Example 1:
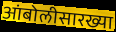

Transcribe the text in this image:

आंबोलीसारख्या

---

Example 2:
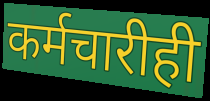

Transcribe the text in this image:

कर्मचारीही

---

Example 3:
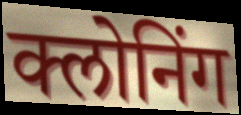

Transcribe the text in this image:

क्लोनिंग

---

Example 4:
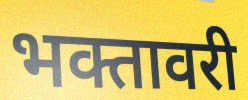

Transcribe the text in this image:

भक्तावरी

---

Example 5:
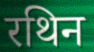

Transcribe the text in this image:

रथिन